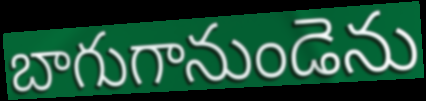
బాగుగానుండెను